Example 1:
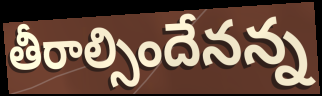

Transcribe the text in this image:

తీరాల్సిందేనన్న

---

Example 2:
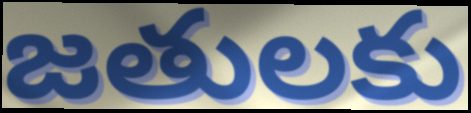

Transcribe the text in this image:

జతులకు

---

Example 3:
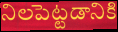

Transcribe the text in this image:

నిలపెట్టడానికి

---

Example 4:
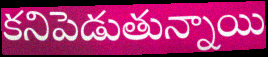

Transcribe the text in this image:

కనిపెడుతున్నాయి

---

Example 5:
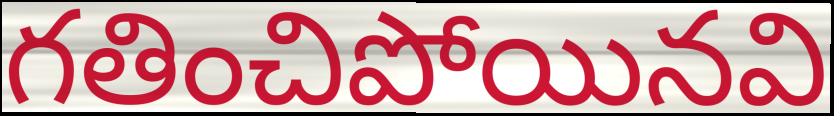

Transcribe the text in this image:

గతించిపోయినవి